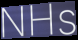
NHs